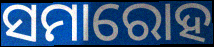
ସମାରୋହ